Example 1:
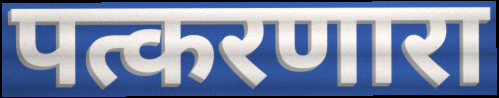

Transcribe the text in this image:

पत्करणारा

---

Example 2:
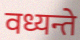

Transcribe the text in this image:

वध्यन्ते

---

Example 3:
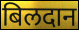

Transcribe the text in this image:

बिलदान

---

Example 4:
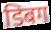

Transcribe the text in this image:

डिबग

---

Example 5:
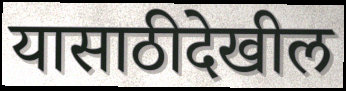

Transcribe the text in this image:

यासाठीदेखील